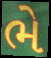
ભે